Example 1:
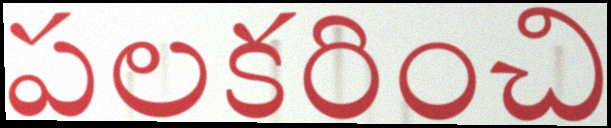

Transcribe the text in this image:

పలకరించి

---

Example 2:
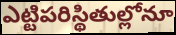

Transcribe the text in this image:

ఎట్టిపరిస్థితుల్లోనూ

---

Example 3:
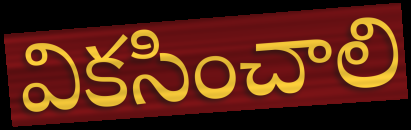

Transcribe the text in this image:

వికసించాలి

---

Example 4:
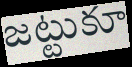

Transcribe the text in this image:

జట్టుకూ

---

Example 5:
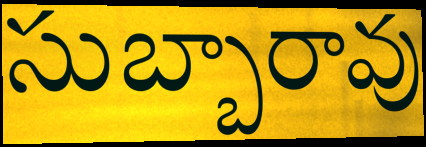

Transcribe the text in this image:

సుబ్బారావు